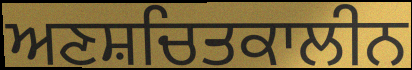
ਅਣਸ਼ਚਿਤਕਾਲੀਨ